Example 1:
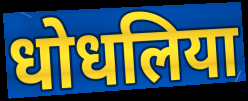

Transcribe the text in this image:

धोधलिया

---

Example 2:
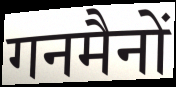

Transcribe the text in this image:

गनमैनों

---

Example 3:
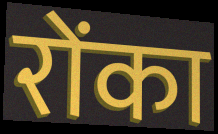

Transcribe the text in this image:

रोंका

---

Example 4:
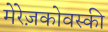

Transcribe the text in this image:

मेरेज़कोवस्की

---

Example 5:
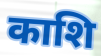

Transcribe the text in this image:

काशि